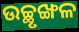
ଉଚ୍ଛୃଙ୍ଖଳ